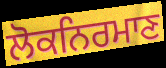
ਲੋਕਨਿਰਮਾਣ